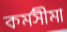
কর্মসীমা